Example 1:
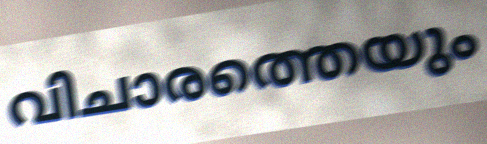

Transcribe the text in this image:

വിചാരത്തെയും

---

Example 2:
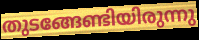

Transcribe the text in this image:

തുടങ്ങേണ്ടിയിരുന്നു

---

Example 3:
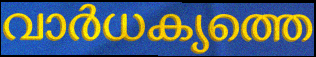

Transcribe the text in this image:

വാർധക്യത്തെ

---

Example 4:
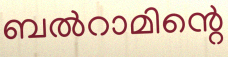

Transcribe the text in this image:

ബൽറാമിന്റെ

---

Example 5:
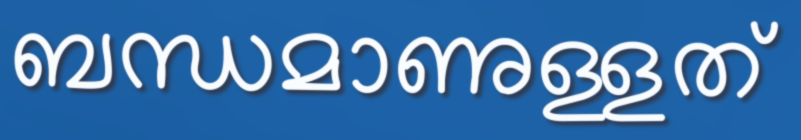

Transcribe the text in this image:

ബന്ധമാണുള്ളത്